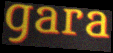
gara